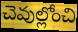
చెవుల్లోంచి